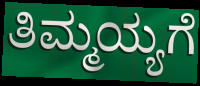
ತಿಮ್ಮಯ್ಯಗೆ